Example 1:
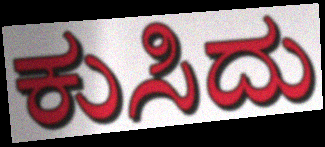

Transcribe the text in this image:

ಕುಸಿದು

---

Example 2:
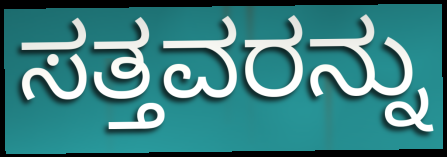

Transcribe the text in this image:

ಸತ್ತವರನ್ನು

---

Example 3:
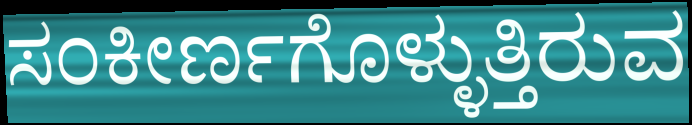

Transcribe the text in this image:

ಸಂಕೀರ್ಣಗೊಳ್ಳುತ್ತಿರುವ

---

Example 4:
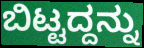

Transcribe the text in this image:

ಬಿಟ್ಟದ್ದನ್ನು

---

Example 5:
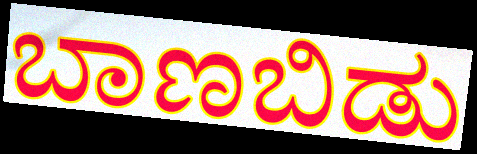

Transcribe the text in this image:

ಬಾಣಬಿಡು